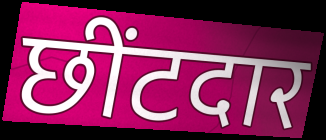
छींटदार